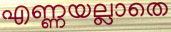
എണ്ണയല്ലാതെ